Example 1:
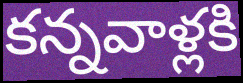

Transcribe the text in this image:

కన్నవాళ్లకి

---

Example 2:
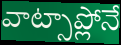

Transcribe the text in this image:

వాట్సాప్లోనే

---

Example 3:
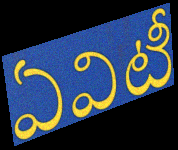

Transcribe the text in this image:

ఏవిటీ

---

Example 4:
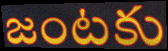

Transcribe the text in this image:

జంటకు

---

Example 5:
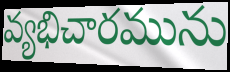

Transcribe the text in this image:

వ్యభిచారమును